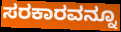
ಸರಕಾರವನ್ನೂ